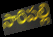
సారిపల్లి